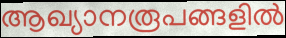
ആഖ്യാനരൂപങ്ങളിൽ